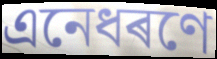
এনেধৰণে